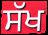
ਸੱਖ